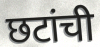
छटांची